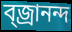
ব্জ্রানন্দ